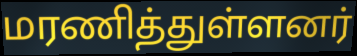
மரணித்துள்ளனர்